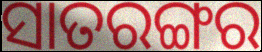
ସାତରଙ୍ଗର